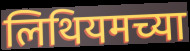
लिथियमच्या